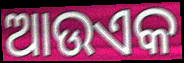
ଆଉଏକ